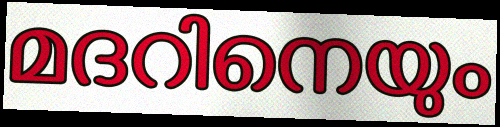
മദറിനെയും